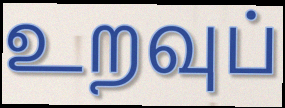
உறவுப்